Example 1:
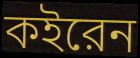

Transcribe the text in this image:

কইরেন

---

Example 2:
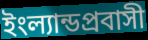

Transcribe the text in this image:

ইংল্যান্ডপ্রবাসী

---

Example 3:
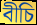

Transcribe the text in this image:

বীচি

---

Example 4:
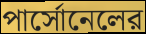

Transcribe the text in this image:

পার্সোনেলের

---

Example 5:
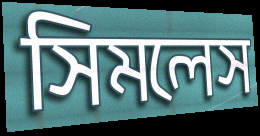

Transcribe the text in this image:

সিমলেস